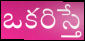
ఒకరిస్తే